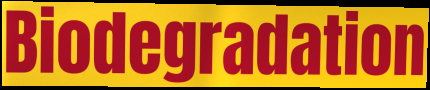
Biodegradation